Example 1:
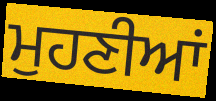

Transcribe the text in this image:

ਮੁਹਣੀਆਂ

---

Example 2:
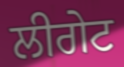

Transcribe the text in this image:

ਲੀਗੇਟ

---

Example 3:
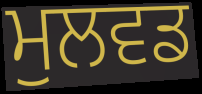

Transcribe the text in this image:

ਮੁਲਵਡ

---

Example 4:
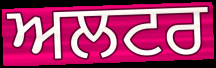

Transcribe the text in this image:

ਅਲਟਰ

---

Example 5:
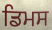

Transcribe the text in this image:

ਡਿਮਸ